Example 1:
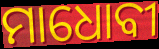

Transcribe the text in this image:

ମାଧୋବୀ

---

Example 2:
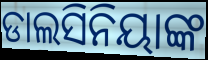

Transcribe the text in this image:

ଡାଲସିନିୟାଙ୍କ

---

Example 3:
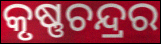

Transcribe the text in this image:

କୃଷ୍ଣଚନ୍ଦ୍ରର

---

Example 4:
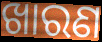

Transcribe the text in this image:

ଖାରଣ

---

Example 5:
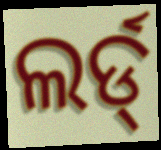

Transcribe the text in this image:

ଲର୍ଡ୍